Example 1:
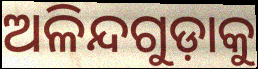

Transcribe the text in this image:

ଅଳିନ୍ଦଗୁଡ଼ାକୁ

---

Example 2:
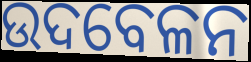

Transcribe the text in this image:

ଉଦବେଳନ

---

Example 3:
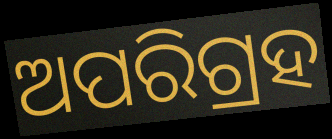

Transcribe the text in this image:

ଅପରିଗ୍ରହ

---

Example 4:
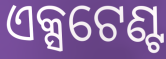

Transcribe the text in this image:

ଏକ୍ସଟେଣ୍ଟ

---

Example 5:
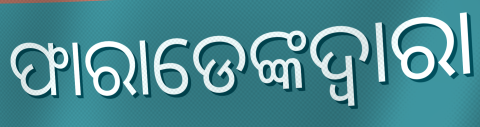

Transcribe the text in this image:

ଫାରାଡେଙ୍କଦ୍ୱାରା